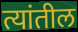
त्यांतील